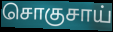
சொகுசாய்